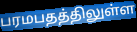
பரமபதத்திலுள்ள